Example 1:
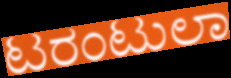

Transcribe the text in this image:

ಟರಂಟುಲಾ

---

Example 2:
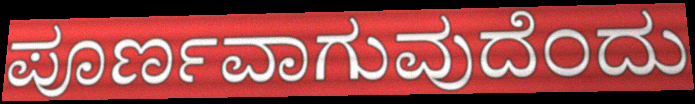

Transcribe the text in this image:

ಪೂರ್ಣವಾಗುವುದೆಂದು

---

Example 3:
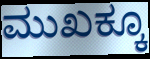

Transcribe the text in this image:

ಮುಖಕ್ಕೂ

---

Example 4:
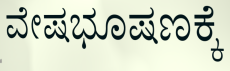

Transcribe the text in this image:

ವೇಷಭೂಷಣಕ್ಕೆ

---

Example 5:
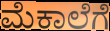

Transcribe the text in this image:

ಮೆಕಾಲೆಗೆ